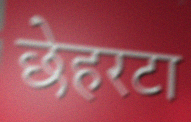
छेहरटा